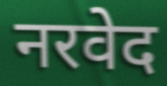
नरवेद